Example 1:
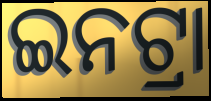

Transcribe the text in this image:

ଇନଟ୍ରା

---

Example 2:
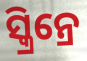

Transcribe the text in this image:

ସ୍କ୍ରିନ୍ରେ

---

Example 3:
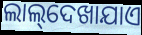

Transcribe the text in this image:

ଲାଲ୍‌ଦେଖାଯାଏ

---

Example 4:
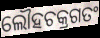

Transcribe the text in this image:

ଲୌହଚକ୍ରଗତଂ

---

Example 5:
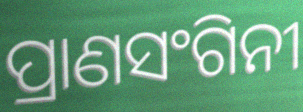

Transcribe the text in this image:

ପ୍ରାଣସଂଗିନୀ